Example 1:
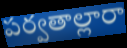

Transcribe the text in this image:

పర్వతాల్లారా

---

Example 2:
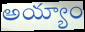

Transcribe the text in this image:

అయ్యాం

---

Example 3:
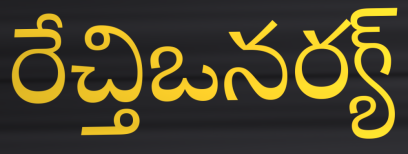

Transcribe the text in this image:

రేచ్తిఒనర్య్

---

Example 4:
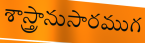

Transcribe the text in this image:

శాస్త్రానుసారముగ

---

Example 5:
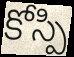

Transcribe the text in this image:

కోస్పి